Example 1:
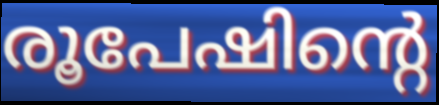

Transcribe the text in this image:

രൂപേഷിന്റെ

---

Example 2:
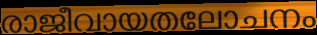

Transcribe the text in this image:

രാജീവായതലോചനം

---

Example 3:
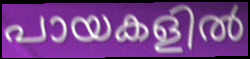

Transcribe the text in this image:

പായകളിൽ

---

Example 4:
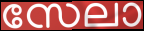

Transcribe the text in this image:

സേലാ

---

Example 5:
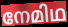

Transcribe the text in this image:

നേമിഥ